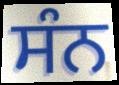
ਸੰਨ